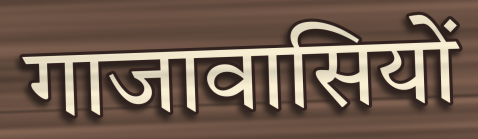
गाजावासियों